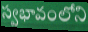
స్వభావంలోని